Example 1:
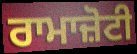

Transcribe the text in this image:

ਰਾਮਾਜ਼ੋਟੀ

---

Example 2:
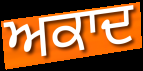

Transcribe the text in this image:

ਅਕਾਦ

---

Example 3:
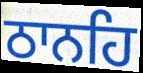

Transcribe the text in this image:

ਠਾਨਹਿ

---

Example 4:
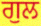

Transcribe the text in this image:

ਗੁਲ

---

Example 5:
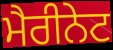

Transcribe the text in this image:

ਮੈਰੀਨੇਟ